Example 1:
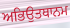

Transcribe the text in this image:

ਅਭਿਉਤਥਾਨਮ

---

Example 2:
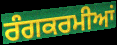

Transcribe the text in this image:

ਰੰਗਕਰਮੀਆਂ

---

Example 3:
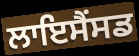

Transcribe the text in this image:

ਲਾਇਸੈਂਸਡ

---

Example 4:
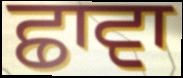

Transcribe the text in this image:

ਛਾਵਾ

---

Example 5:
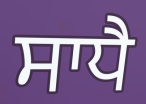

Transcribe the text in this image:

ਸਾਧੈ